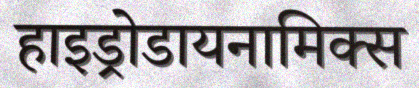
हाइड्रोडायनामिक्स